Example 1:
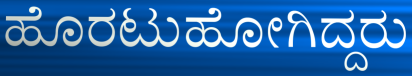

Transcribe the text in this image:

ಹೊರಟುಹೋಗಿದ್ದರು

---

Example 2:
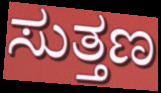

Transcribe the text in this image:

ಸುತ್ತಣ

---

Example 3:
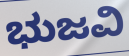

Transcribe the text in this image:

ಭುಜವಿ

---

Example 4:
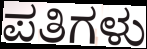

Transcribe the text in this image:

ಪತಿಗಳು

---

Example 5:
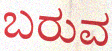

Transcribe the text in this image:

ಬರುವ